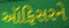
ઑફિસરને